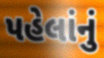
પહેલાંનું